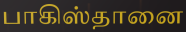
பாகிஸ்தானை